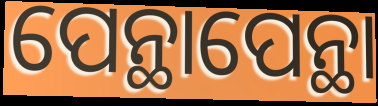
ପେନ୍ଥାପେନ୍ଥା